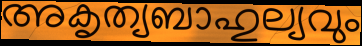
അകൃത്യബാഹുല്യവും